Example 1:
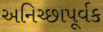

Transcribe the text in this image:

અનિચ્છાપૂર્વક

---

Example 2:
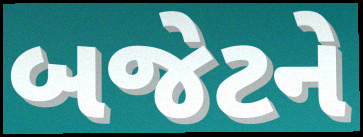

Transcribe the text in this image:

બજેટને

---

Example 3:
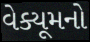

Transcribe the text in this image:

વેક્યૂમનો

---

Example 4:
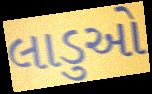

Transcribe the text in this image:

લાડુઓ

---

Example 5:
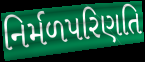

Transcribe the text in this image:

નિર્મળપરિણતિ